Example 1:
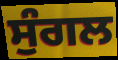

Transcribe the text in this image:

ਸੁੰਗਲ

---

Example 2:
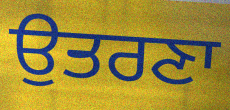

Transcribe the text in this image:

ਉਤਰਣਾ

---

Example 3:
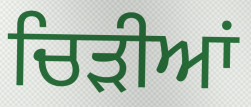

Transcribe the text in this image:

ਚਿੜੀਆਂ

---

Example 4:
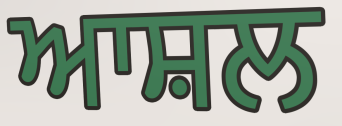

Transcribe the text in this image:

ਆਸ਼ਲ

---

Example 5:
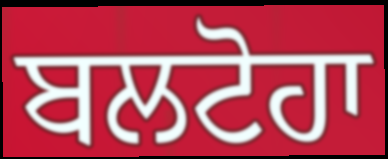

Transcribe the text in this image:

ਬਲਟੋਹਾ